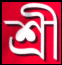
শ্ৰী